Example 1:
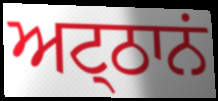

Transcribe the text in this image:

ਅਟ੍ਠਾਨਂ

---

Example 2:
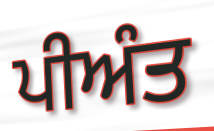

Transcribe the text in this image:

ਪੀਅੰਤ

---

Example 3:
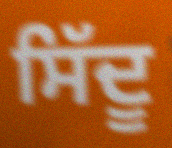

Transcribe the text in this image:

ਸਿੱਦੂ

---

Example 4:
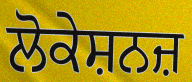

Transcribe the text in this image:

ਲੋਕੇਸ਼ਨਜ਼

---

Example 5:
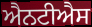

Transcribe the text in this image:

ਐਨਟੀਐਸ